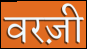
वरज़ी